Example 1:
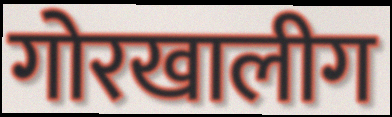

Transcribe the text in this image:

गोरखालीग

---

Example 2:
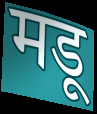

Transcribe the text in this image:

मडू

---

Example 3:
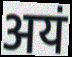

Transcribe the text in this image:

अयं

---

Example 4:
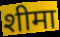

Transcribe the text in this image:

शीमा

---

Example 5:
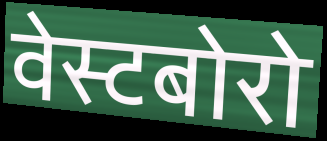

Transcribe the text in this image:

वेस्टबोरो